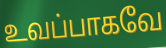
உவப்பாகவே